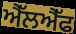
ਐੱਲਐੱਫ